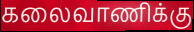
கலைவாணிக்கு